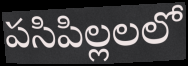
పసిపిల్లలలో